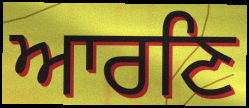
ਆਰਣਿ